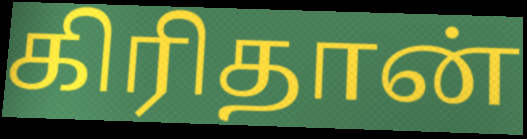
கிரிதான்